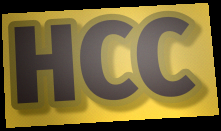
HCC